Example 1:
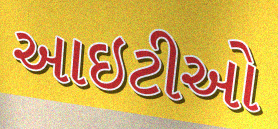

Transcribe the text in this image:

આઇટીઓ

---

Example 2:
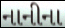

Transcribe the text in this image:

નાનીના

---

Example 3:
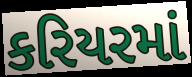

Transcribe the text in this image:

કરિયરમાં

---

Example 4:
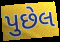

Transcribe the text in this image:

પુછેલ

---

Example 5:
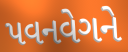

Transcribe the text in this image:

પવનવેગને